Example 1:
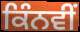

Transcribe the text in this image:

ਕਿੰਨਵੀਂ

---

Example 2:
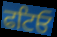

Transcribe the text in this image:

ਫਟਿਓ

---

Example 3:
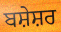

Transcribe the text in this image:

ਬਸ਼ੇਸ਼ਰ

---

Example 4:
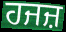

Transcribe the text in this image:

ਹਜਜ਼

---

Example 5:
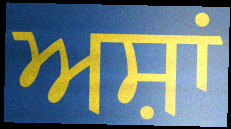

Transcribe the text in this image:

ਅਸ਼ਾਂ